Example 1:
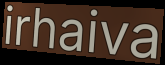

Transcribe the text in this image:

irhaiva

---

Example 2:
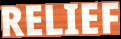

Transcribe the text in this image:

RELIEF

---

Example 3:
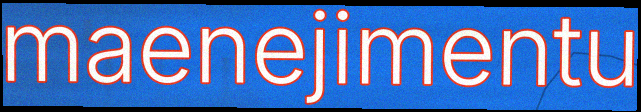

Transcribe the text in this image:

maenejimentu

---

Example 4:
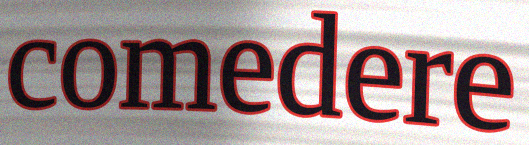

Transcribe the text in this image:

comedere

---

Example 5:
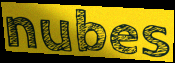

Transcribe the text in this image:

nubes